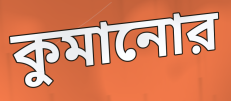
কুমানোর